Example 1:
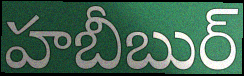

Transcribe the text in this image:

హబీబుర్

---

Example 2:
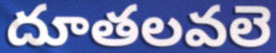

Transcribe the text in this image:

దూతలవలె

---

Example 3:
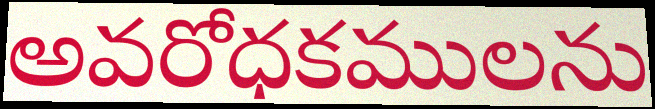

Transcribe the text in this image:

అవరోధకములను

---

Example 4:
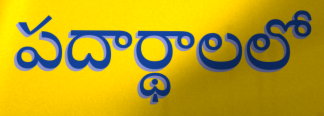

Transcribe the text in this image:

పదార్థాలలో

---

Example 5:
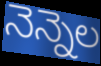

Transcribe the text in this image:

నెన్నెల